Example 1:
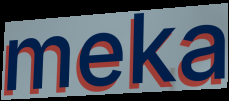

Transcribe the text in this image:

meka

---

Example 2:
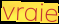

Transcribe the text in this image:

vraie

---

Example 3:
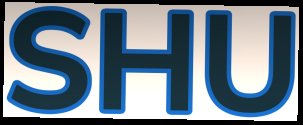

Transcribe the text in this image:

SHU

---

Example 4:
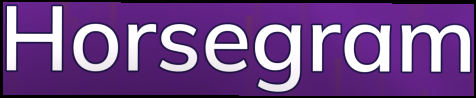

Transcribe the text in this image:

Horsegram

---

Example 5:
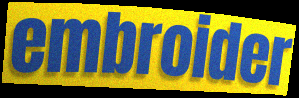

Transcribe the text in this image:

embroider